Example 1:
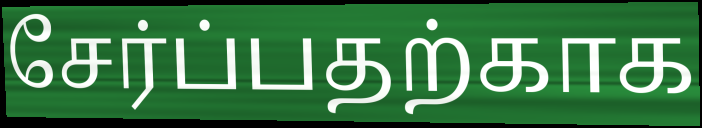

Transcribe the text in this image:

சேர்ப்பதற்காக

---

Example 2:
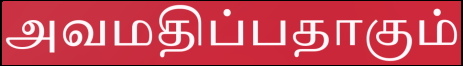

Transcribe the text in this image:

அவமதிப்பதாகும்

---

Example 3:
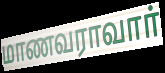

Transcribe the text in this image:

மாணவராவார்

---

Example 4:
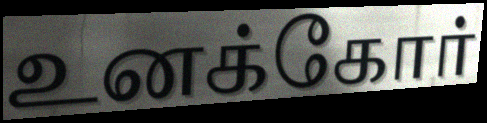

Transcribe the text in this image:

உனக்கோர்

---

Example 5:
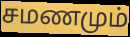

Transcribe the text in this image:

சமணமும்